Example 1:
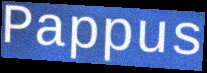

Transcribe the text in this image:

Pappus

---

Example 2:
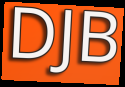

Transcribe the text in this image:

DJB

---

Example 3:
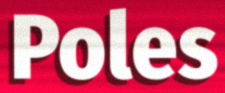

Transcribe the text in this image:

Poles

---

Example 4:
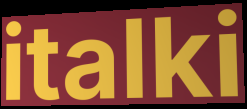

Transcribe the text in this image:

italki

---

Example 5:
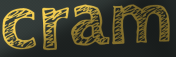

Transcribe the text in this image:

cram